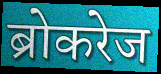
ब्रोकरेज